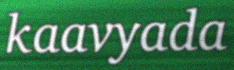
kaavyada